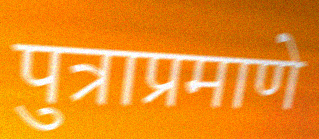
पुत्राप्रमाणे